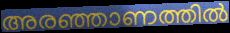
അരഞ്ഞാണത്തിൽ